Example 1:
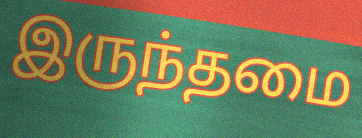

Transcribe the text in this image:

இருந்தமை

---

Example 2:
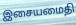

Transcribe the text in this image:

இசையமைதி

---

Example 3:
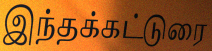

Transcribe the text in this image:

இந்தக்கட்டுரை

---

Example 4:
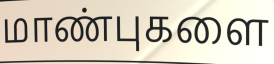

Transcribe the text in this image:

மாண்புகளை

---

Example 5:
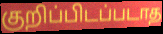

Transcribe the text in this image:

குறிப்பிடப்படாத